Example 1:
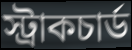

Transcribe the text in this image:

স্ট্রাকচার্ড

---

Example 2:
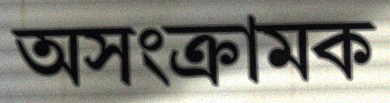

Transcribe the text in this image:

অসংক্রামক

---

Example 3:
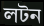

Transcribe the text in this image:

লটন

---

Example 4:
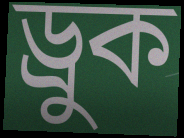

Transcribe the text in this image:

ড্রুক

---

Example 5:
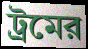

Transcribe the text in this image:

ট্রমের